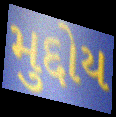
મુદ્દોય